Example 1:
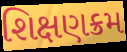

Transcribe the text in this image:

શિક્ષણક્રમ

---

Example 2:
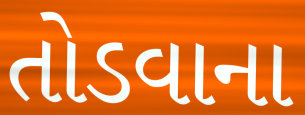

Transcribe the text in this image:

તોડવાના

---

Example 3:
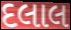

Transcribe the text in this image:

દલાલ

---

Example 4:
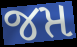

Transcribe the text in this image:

જપ્ત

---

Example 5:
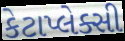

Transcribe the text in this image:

કેટાપ્લેક્સી